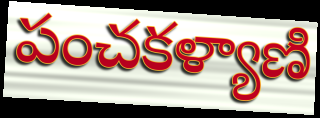
పంచకళ్యాణి